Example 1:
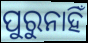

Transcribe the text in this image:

ପୁରୁନାହିଁ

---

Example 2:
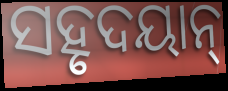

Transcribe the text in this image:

ସହୃଦୟାନ୍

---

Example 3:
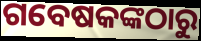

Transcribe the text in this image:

ଗବେଷକଙ୍କଠାରୁ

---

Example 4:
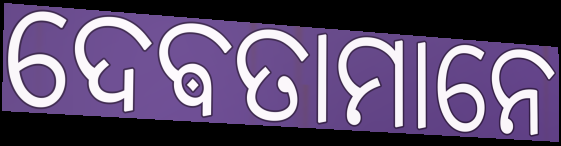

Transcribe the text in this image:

ଦେଵତାମାନେ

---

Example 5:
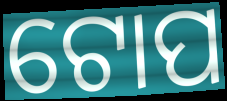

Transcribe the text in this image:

ଟୋପ